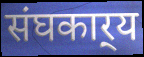
संघकार्य